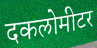
दकलोमीटर